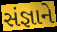
સંજ્ઞાને